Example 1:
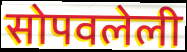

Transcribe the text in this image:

सोपवलेली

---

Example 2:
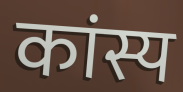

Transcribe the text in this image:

कांस्य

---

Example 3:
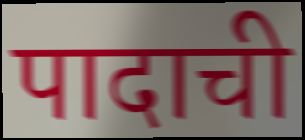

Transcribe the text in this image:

पादाची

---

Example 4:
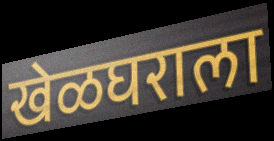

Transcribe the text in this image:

खेळघराला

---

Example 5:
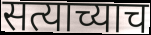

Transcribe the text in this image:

सत्याच्याच